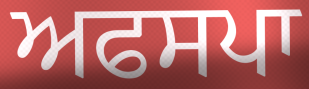
ਅਫਸਪਾ